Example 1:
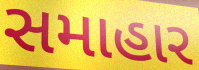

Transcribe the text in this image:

સમાહાર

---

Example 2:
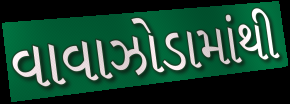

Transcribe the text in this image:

વાવાઝોડામાંથી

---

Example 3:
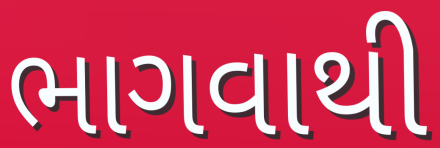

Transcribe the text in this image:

ભાગવાથી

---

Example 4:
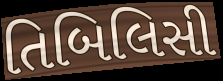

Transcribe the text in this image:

તિબિલિસી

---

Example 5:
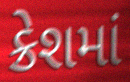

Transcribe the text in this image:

ક્રેશમાં